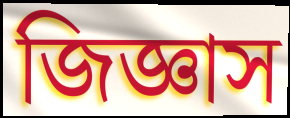
জিজ্ঞাস